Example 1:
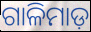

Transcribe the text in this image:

ଗାଳିମାଡ଼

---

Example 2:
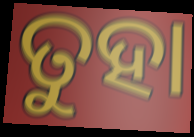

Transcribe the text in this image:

ତୁହା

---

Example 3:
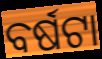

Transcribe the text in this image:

ବର୍ଷଟା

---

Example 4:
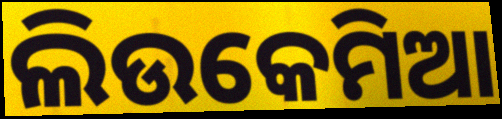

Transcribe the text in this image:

ଲିଉକେମିଆ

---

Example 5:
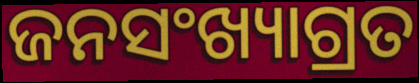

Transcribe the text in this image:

ଜନସଂଖ୍ୟାଗ୍ରତ